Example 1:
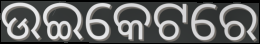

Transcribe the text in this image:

ଉଇକେଟରେ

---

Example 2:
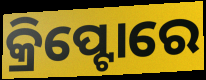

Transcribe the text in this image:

କ୍ରିପ୍ଟୋରେ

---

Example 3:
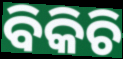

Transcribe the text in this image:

ବିକିଚି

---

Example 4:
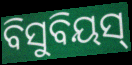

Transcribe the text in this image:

ବିସୁବିୟସ୍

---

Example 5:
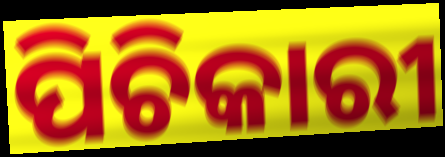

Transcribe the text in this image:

ପିଚିକାରୀ